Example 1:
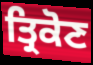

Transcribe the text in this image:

ਤ੍ਰਿਕੋਣ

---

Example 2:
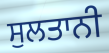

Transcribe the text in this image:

ਸੁਲਤਾਨੀ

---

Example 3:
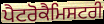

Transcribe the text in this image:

ਪੈਟਰੋਕੈਮਿਸਟਰੀ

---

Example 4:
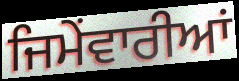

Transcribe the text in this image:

ਜਿਮੇਂਵਾਰੀਆਂ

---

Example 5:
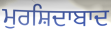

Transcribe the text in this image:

ਮੁਰਸ਼ਿਦਾਬਾਦ